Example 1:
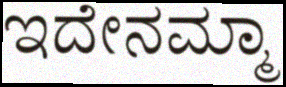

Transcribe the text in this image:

ಇದೇನಮ್ಮಾ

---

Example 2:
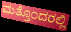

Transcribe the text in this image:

ಮತ್ತೊಂದರಲ್ಲಿ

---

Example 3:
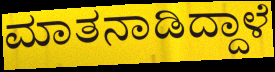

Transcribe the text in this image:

ಮಾತನಾಡಿದ್ದಾಳೆ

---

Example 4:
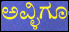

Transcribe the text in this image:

ಅವ್ಳಿಗೂ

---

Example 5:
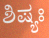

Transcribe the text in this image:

ಶಿಷ್ಯಃ